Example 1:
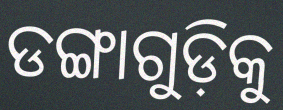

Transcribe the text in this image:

ଡଙ୍ଗାଗୁଡ଼ିକୁ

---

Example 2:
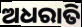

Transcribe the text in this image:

ଅଧରାତି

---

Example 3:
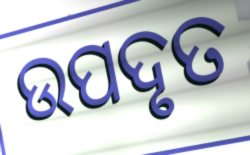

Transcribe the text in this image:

ଉପଦୃତ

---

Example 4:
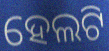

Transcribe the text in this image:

ହେଲଟି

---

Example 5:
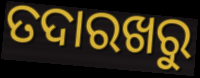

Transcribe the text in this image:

ତଦାରଖରୁ